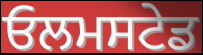
ਓਲਮਸਟੇਡ